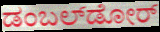
ಡಂಬಲ್‌ಡೋರ್